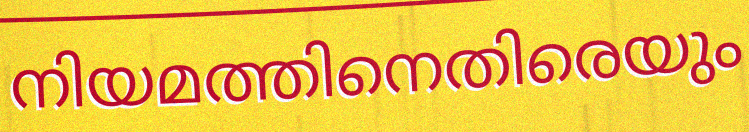
നിയമത്തിനെതിരെയും